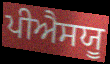
ਪੀਐਸਯੂ